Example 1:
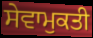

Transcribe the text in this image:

ਸੇਵਾਮੁਕਤੀ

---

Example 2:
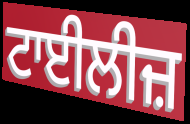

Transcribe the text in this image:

ਟਾਈਲੀਜ਼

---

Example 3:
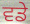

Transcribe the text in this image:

ਵਡੇ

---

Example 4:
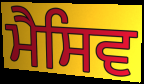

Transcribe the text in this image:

ਮੈਸਿਵ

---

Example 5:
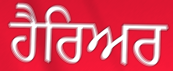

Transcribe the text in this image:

ਹੈਰਿਅਰ